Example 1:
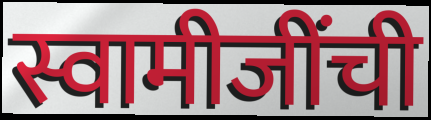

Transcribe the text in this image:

स्वामीजींची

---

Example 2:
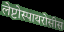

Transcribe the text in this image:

लेप्टोस्पायरोसीस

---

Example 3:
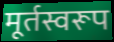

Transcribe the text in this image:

मूर्तस्वरूप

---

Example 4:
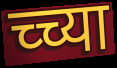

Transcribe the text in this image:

च्च्या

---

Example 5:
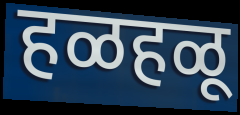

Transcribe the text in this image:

हळहळू